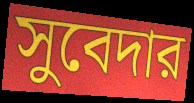
সুবেদার